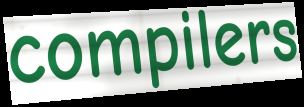
compilers